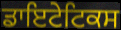
ਡਾਇਟੇਟਿਕਸ